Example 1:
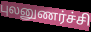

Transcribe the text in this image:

புலனுணர்ச்சி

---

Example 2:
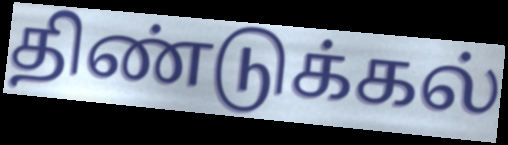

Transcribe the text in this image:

திண்டுக்கல்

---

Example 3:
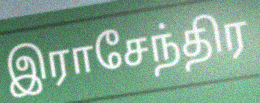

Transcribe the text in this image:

இராசேந்திர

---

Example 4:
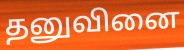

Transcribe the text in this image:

தனுவினை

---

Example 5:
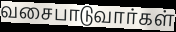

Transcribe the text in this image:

வசைபாடுவார்கள்